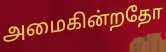
அமைகின்றதோ